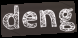
deng